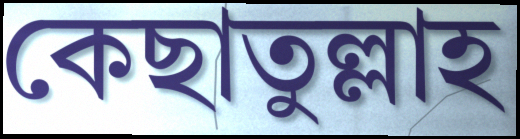
কেছাতুল্লাহ